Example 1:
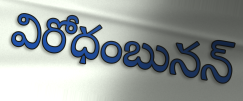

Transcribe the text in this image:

విరోధంబునన్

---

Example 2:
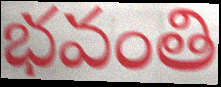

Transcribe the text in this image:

భవంతి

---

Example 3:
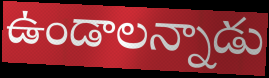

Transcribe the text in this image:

ఉండాలన్నాడు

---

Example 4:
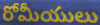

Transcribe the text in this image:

రోమీయులు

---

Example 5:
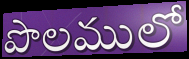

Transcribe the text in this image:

పొలములో